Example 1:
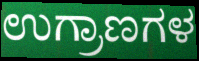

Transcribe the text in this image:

ಉಗ್ರಾಣಗಳ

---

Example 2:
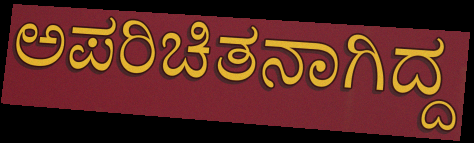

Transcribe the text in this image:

ಅಪರಿಚಿತನಾಗಿದ್ದ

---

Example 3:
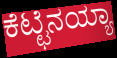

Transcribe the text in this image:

ಕೆಟ್ಟೆನಯ್ಯಾ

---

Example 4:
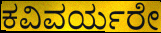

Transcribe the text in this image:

ಕವಿವರ್ಯರೇ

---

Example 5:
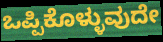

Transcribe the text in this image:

ಒಪ್ಪಿಕೊಳ್ಳುವುದೇ